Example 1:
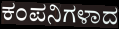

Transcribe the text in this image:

ಕಂಪನಿಗಳಾದ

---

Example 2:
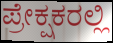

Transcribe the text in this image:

ಪ್ರೇಕ್ಷಕರಲ್ಲಿ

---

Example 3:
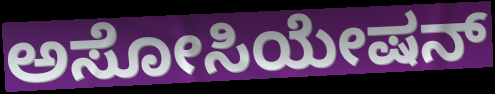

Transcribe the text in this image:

ಅಸೋಸಿಯೇಷನ್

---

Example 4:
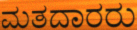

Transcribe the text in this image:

ಮತದಾರರು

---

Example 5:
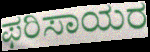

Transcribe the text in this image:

ಫರಿಸಾಯರ